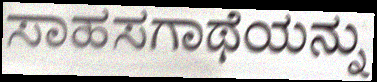
ಸಾಹಸಗಾಥೆಯನ್ನು